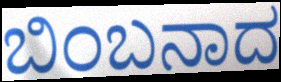
ಬಿಂಬನಾದ